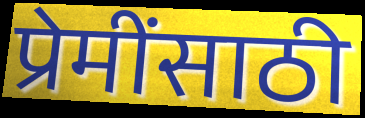
प्रेमींसाठी